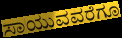
ಸಾಯುವವರೆಗೂ